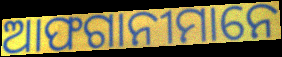
ଆଫଗାନୀମାନେ